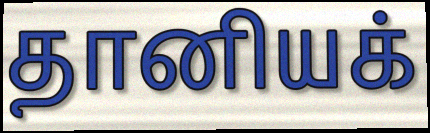
தானியக்